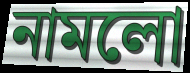
নামলো